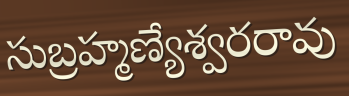
సుబ్రహ్మణ్యేశ్వరరావు